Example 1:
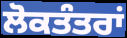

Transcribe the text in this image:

ਲੋਕਤੰਤਰਾਂ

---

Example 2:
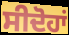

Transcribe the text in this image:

ਸੀਦੋਹਾਂ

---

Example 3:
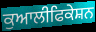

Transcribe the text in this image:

ਕੁਆਲੀਫਿਕੇਸ਼ਨ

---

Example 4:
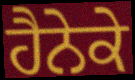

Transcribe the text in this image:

ਹੈਨੇਕੇ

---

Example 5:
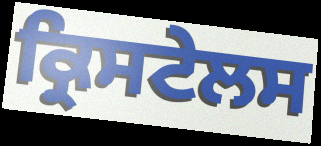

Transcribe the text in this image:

ਕ੍ਰਿਸਟੇਲਸ